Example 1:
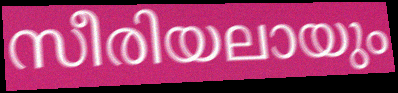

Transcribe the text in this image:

സീരിയലായും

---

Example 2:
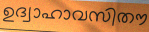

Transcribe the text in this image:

ഉദ്വാഹാവസിതൗ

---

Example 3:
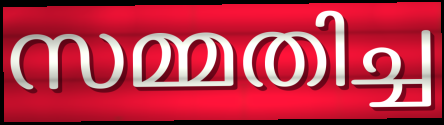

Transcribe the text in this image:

സമ്മതിച്ച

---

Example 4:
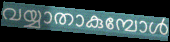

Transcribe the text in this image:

വയ്യാതാകുമ്പോൾ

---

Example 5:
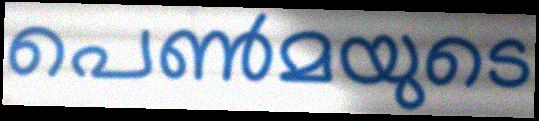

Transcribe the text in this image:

പെൺമയുടെ